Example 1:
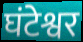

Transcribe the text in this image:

घंटेश्वर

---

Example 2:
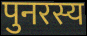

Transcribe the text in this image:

पुनरस्य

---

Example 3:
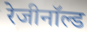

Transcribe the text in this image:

रेजीनॉल्ड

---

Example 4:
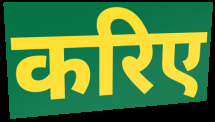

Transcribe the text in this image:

करिए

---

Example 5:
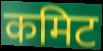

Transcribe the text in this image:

कमिट